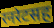
रनरेटसह